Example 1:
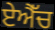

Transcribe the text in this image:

ਏਐੱਚ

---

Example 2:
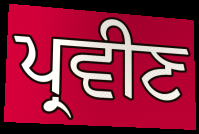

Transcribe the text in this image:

ਪ੍ਰਵੀਣ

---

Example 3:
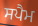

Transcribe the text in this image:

ਸਪੈਮ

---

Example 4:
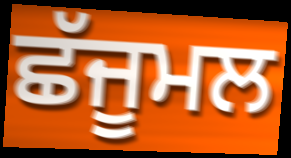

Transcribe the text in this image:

ਛੱਜੂਮਲ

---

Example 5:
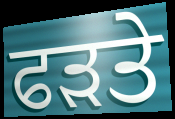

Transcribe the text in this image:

ਫੜਤੇ